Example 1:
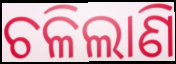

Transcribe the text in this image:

ଚଳିଲାଣି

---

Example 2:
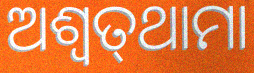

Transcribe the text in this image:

ଅଶ୍ଵତ୍‌ଥାମା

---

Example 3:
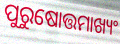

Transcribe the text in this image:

ପୁରୁଷୋତ୍ତମାଖ୍ୟଂ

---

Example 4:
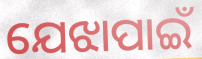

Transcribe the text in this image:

ଯେଝାପାଇଁ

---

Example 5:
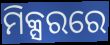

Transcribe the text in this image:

ମିକ୍ସରରେ